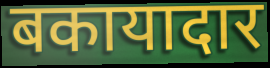
बकायादार